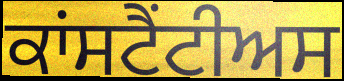
ਕਾਂਸਟੈਂਟੀਅਸ